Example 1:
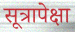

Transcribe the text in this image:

सूत्रापेक्षा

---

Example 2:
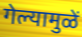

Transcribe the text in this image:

गेल्यामुळें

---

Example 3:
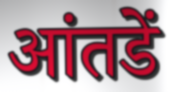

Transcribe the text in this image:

आंतडें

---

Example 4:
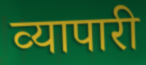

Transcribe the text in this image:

व्‍यापारी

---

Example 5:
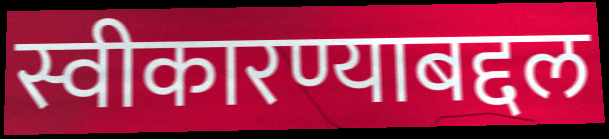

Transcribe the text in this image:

स्वीकारण्याबद्दल